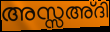
അസ്സഅ്ദി